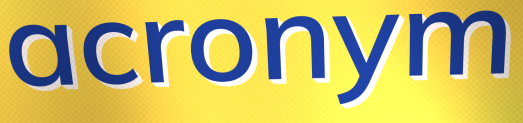
acronym